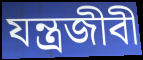
যন্ত্রজীবী